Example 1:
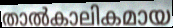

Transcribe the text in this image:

താൽകാലികമായ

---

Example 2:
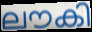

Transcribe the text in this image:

ലൗകി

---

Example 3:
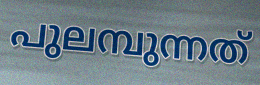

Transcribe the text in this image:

പുലമ്പുന്നത്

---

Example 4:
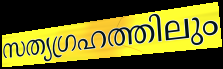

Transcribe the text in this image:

സത്യഗ്രഹത്തിലും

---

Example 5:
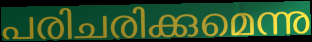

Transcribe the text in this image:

പരിചരിക്കുമെന്നു